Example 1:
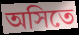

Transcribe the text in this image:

অসিতে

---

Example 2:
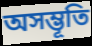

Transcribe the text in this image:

অসম্ভূতি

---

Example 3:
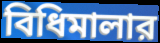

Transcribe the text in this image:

বিধিমালার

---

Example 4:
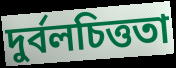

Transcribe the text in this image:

দুর্বলচিত্ততা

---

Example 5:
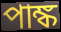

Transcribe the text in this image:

পাঙ্ক